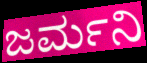
ಜರ್ಮನಿ